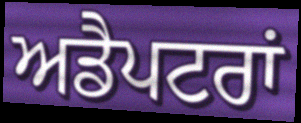
ਅਡੈਪਟਰਾਂ